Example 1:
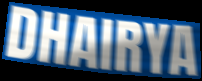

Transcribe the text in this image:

DHAIRYA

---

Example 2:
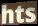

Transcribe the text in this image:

hts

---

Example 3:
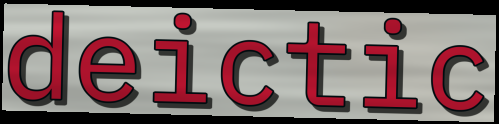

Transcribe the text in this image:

deictic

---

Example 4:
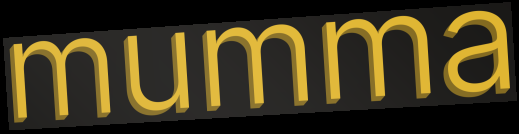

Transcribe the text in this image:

mumma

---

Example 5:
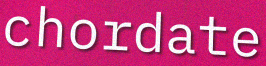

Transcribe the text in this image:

chordate